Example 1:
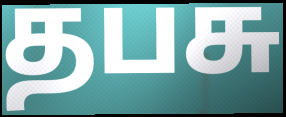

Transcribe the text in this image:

தபசு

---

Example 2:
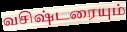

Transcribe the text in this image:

வசிஷ்டரையும்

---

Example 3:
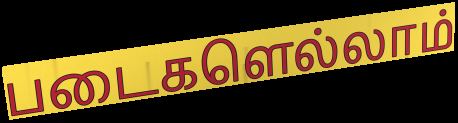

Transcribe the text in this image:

படைகளெல்லாம்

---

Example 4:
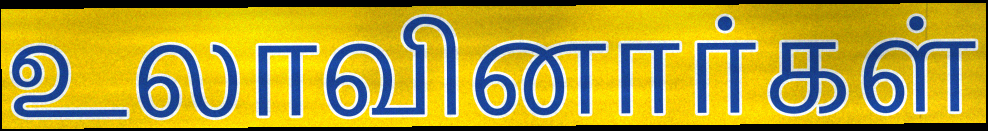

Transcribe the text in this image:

உலாவினார்கள்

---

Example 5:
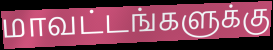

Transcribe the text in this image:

மாவட்டங்களுக்கு